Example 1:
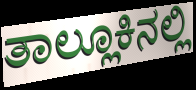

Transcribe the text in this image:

ತಾಲ್ಲೂಕಿನಲ್ಲಿ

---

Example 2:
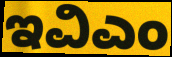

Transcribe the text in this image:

ಇವಿಎಂ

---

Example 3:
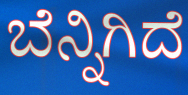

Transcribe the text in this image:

ಬೆನ್ನಿಗಿದೆ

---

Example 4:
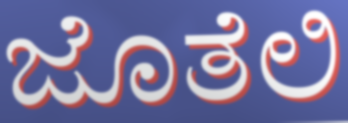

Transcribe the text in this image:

ಜೊತೆಲಿ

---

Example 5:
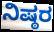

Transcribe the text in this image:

ನಿಷ್ಠರ